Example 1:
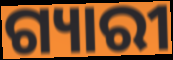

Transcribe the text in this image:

ଗ୍ୟାରୀ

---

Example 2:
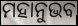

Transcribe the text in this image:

ମହାନୁଭବ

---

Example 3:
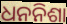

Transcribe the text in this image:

ଧନନିଶା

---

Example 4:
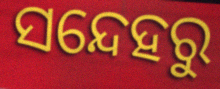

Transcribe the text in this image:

ସନ୍ଦେହରୁ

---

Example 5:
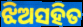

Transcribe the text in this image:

ଝିଅସହିତ